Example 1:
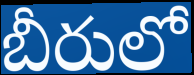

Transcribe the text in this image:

బీరులో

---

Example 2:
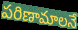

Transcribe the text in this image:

పరిణామాలనే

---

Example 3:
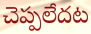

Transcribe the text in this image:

చెప్పలేదట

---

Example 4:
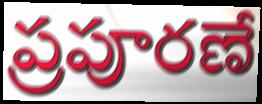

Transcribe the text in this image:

ప్రపూరణే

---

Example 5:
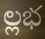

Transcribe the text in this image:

ల్లభ